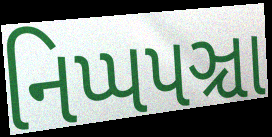
નિપ્પપઞ્ચા